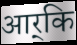
आर्कि